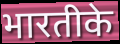
भारतीके